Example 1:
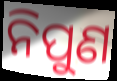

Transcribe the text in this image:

ନିପୁଣ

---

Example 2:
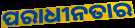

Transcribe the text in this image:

ପରାଧୀନତାର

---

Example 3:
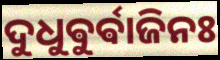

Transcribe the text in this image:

ଦୁଧୁଵୁର୍ଵାଜିନଃ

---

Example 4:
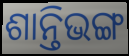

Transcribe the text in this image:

ଶାନ୍ତିଭଙ୍ଗ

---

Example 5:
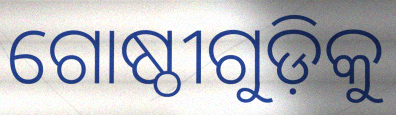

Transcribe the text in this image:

ଗୋଷ୍ଠୀଗୁଡ଼ିକୁ